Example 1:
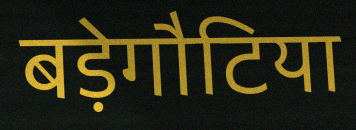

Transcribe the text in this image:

बड़ेगौटिया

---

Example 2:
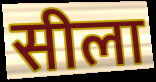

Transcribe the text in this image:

सीला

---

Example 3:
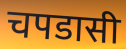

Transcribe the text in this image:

चपडासी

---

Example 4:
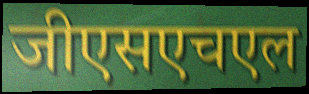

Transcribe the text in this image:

जीएसएचएल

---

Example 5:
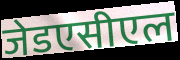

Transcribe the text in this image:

जेडएसीएल